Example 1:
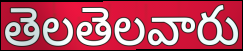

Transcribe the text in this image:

తెలతెలవారు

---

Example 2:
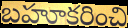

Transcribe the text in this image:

బహూకరించి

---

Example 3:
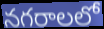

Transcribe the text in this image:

నగరాలలో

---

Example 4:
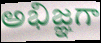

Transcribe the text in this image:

అభిజ్ఞగా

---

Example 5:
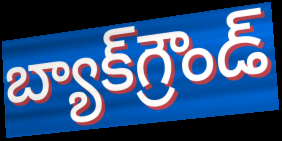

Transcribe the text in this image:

బ్యాక్‌గ్రౌండ్